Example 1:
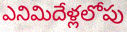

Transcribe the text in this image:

ఎనిమిదేళ్లలోపు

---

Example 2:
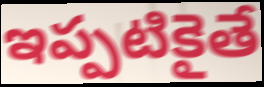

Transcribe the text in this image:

ఇప్పటికైతే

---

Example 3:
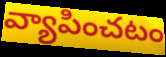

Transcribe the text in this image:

వ్యాపించటం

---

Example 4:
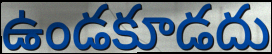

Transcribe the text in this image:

ఉండకూడదు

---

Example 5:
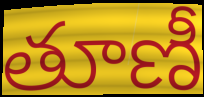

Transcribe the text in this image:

తూణీ